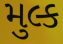
મુલ્ક